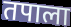
तपाला